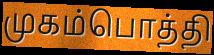
முகம்பொத்தி